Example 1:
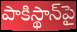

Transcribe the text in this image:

పాకిస్థాన్‌పై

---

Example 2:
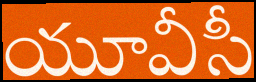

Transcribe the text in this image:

యూవీసీ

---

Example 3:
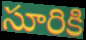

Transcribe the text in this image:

సూరికి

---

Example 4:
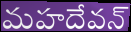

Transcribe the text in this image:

మహదేవన్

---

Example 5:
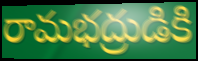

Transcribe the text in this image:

రామభద్రుడికి